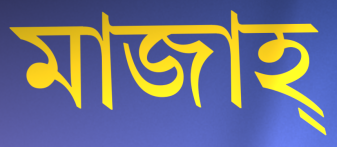
মাজাহ্